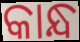
କାନ୍ଧ